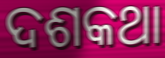
ଦଶକଥା